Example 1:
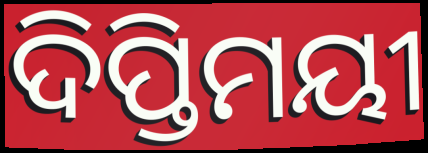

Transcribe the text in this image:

ଦିପ୍ତିମୟୀ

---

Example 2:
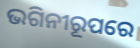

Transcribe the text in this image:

ଭଗିନୀରୂପରେ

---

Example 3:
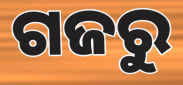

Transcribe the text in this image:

ଗଜରୁ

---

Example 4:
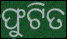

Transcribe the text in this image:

ଫୁଟିତ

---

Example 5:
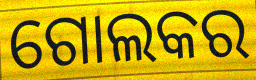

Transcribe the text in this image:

ଗୋଲକର